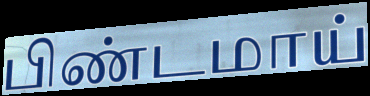
பிண்டமாய்